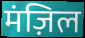
मंज़िल